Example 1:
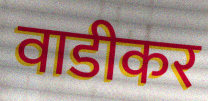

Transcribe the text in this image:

वाडीकर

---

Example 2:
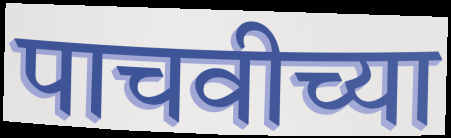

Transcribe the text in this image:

पाचवीच्या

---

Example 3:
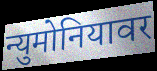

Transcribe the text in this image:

न्युमोनियावर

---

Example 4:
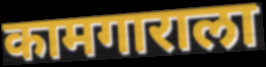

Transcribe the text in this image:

कामगाराला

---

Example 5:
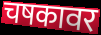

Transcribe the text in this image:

चषकावर